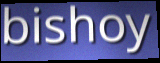
bishoy